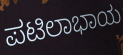
ಪಟಿಲಾಭಾಯ